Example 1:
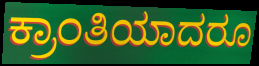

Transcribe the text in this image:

ಕ್ರಾಂತಿಯಾದರೂ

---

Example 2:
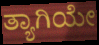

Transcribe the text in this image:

ತ್ಯಾಗಿಯೇ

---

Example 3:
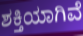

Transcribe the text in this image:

ಶಕ್ತಿಯಾಗಿವೆ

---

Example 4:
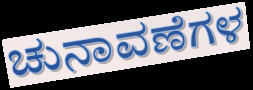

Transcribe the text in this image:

ಚುನಾವಣೆಗಳ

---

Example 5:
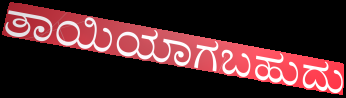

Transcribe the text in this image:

ತಾಯಿಯಾಗಬಹುದು